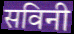
सविनी